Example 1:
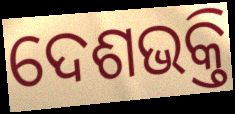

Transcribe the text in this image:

ଦେଶଭକ୍ତି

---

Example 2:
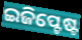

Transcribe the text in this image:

ଇଜିପ୍ଟେଷ୍ଟ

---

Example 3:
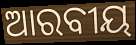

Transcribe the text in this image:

ଆରବୀୟ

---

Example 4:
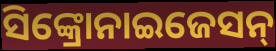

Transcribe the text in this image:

ସିଙ୍କ୍ରୋନାଇଜେସନ୍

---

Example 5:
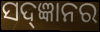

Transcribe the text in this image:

ସଦ୍‌ଜ୍ଞାନର